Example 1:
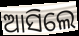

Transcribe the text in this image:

ଆସିଲେ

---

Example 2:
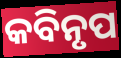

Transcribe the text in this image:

କବିନୃପ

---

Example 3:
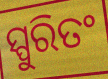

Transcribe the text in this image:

ସ୍ପୁରିତଂ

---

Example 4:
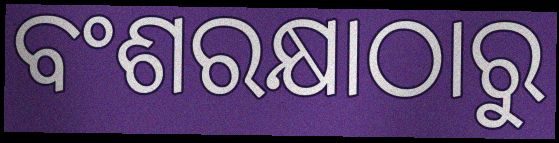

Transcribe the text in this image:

ବଂଶରକ୍ଷାଠାରୁ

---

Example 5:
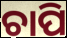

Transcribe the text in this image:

ଚାପି